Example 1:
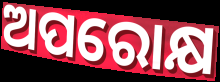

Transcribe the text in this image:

ଅପରୋକ୍ଷ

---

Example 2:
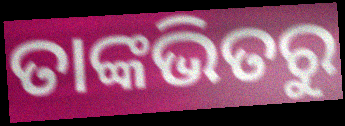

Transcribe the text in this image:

ତାଙ୍କଭିତରୁ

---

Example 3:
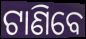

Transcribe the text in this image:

ଟାଣିବେ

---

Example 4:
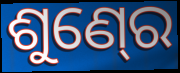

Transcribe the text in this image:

ଶୁଣ୍‍ରେ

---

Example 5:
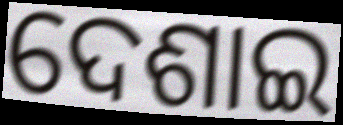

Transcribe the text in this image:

ଦେଶାଇ